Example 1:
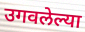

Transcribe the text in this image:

उगवलेल्या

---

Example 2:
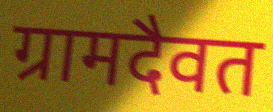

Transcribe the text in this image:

ग्रामदैवत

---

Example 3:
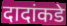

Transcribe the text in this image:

दादांकडे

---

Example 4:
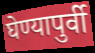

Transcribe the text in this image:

घेण्यापुर्वी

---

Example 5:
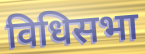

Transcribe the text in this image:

विधिसभा